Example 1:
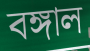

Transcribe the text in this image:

বঙ্গাল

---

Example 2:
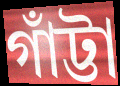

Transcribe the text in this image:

গাঁট্টা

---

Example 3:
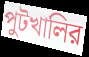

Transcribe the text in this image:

পুটখালির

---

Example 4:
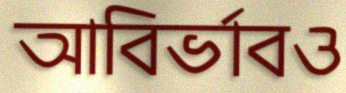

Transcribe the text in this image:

আবির্ভাবও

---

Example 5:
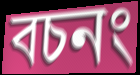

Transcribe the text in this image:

বচনং